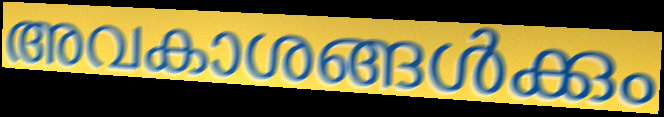
അവകാശങ്ങൾക്കും